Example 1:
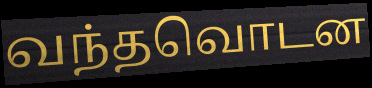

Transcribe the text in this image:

வந்தவொடன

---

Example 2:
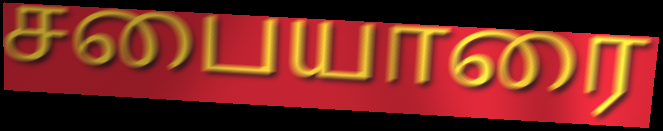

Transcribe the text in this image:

சபையாரை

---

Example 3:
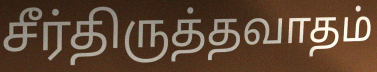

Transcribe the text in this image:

சீர்திருத்தவாதம்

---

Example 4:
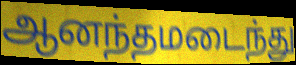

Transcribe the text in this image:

ஆனந்தமடைந்து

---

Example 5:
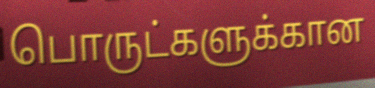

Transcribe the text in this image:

பொருட்களுக்கான